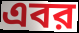
এবর